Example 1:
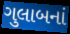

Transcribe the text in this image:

ગુલાબનાં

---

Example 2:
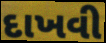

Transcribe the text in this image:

દાખવી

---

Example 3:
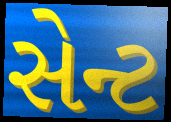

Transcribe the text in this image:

સેન્ટ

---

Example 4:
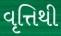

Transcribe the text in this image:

વૃત્તિથી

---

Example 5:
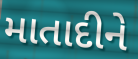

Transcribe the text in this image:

માતાદીને